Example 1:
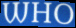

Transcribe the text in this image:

WHO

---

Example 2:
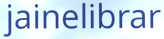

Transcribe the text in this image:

jainelibrar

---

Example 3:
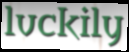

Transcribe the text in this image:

luckily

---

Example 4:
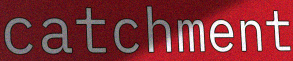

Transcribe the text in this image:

catchment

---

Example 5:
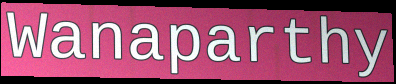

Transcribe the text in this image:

Wanaparthy